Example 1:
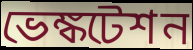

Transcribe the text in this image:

ভেঙ্কটেশন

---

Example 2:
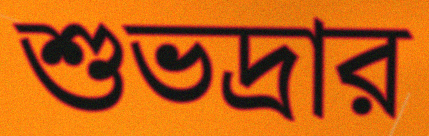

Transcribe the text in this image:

শুভদ্রার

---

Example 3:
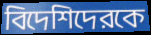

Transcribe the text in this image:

বিদেশিদেরকে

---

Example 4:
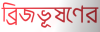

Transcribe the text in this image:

ব্রিজভূষণের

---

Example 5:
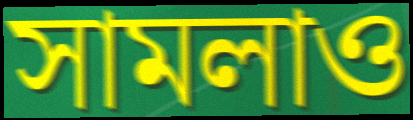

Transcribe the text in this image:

সামলাও